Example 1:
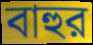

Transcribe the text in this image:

বাহুর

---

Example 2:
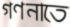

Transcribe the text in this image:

গণনাতে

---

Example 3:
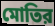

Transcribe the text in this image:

মোতির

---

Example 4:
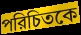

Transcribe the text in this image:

পরিচিতকে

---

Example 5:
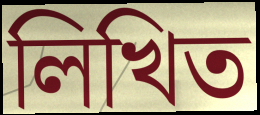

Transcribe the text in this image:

লিখিত